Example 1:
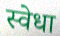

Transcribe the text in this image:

स्वेधा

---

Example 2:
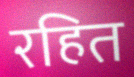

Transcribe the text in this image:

रहित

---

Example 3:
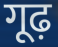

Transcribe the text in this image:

गूढ़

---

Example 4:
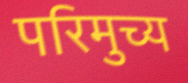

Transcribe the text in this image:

परिमुच्य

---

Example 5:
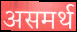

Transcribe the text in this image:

असमर्थ